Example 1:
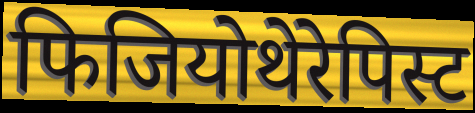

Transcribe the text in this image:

फिजियोथेरेपिस्ट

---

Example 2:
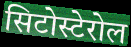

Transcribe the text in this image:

सिटोस्टेरोल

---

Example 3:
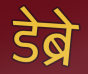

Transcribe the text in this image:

डेब्रे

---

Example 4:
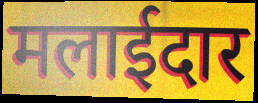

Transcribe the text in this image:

मलाईदार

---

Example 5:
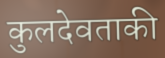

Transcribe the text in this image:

कुलदेवताकी